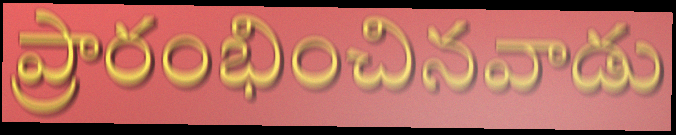
ప్రారంభించినవాడు